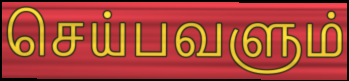
செய்பவளும்